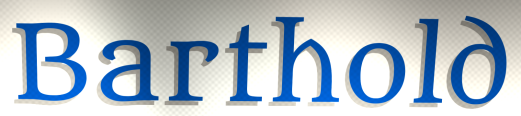
Barthold